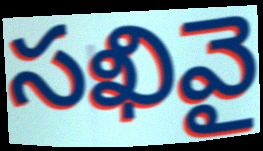
సఖివై